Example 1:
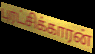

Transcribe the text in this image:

புரட்சிக்காரன்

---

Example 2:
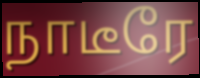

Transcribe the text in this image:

நாடீரே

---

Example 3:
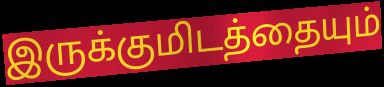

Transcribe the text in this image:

இருக்குமிடத்தையும்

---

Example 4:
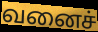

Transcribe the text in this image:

வனைச்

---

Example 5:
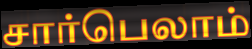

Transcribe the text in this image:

சார்பெலாம்